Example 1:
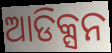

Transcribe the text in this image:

ଆଡିକ୍ସନ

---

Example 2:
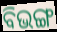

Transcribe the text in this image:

ବିଭଙ୍ଗ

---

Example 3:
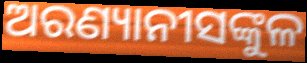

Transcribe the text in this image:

ଅରଣ୍ୟାନୀସଙ୍କୁଳ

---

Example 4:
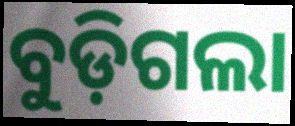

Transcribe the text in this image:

ବୁଡ଼ିଗଲା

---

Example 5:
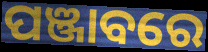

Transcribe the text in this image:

ପଞ୍ଜାବରେ